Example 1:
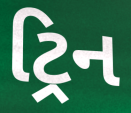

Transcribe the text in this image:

ટ્રિન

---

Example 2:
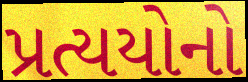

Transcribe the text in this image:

પ્રત્યયોનો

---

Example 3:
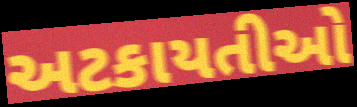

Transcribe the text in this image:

અટકાયતીઓ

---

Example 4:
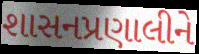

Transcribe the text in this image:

શાસનપ્રણાલીને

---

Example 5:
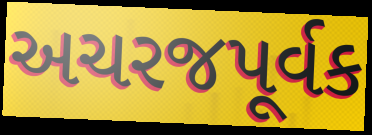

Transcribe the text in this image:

અચરજપૂર્વક